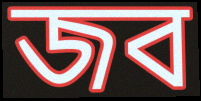
জব